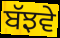
ਬੱਝਵੇ